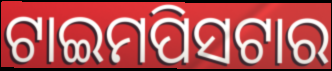
ଟାଇମପିସଟାର